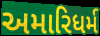
અમારિધર્મ